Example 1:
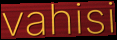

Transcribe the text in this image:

vahisi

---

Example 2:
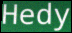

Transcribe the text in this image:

Hedy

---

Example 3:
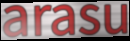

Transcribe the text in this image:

arasu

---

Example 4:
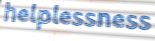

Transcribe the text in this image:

helplessness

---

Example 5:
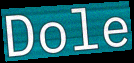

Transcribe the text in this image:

Dole